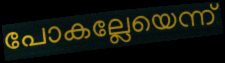
പോകല്ലേയെന്ന്